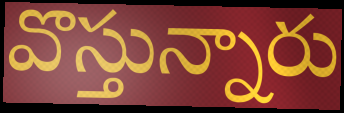
వొస్తున్నారు